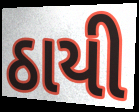
ઠાયી